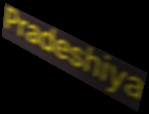
Pradeshiya